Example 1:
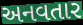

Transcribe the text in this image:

અનવતાર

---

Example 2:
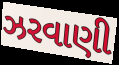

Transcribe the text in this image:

ઝરવાણી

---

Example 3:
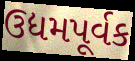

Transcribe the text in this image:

ઉદ્યમપૂર્વક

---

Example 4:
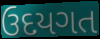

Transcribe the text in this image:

ઉદયગત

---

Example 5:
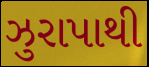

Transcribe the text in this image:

ઝુરાપાથી